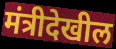
मंत्रीदेखील